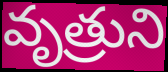
వృత్రుని